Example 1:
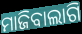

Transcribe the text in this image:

ମାଜିବାଲାଗି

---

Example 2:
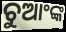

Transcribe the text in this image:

ଚୁଆଂଙ୍କ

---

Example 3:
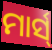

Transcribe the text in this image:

ମାର୍ସ୍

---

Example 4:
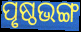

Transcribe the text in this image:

ପୃଷ୍ଠଭଙ୍ଗ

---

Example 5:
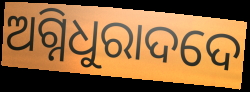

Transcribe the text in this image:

ଅଗ୍ନିଧୁରାଦଦେ